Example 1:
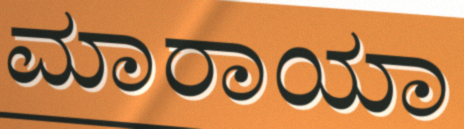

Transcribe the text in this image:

ಮಾರಾಯಾ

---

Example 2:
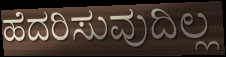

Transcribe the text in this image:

ಹೆದರಿಸುವುದಿಲ್ಲ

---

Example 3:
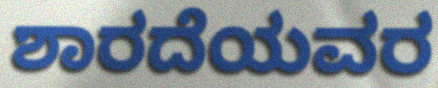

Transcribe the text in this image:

ಶಾರದೆಯವರ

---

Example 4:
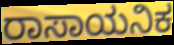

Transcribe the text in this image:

ರಾಸಾಯನಿಕ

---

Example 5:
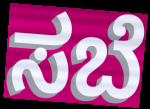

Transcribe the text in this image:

ಸಬೆ